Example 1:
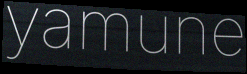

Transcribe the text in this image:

yamune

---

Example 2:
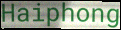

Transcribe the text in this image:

Haiphong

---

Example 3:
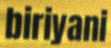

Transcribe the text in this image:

biriyani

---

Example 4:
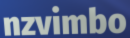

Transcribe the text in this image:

nzvimbo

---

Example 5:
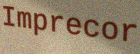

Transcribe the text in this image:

Imprecor